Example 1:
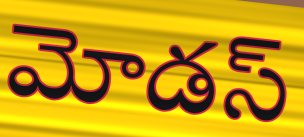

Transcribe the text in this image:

మోడస్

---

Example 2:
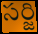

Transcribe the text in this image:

సర్జి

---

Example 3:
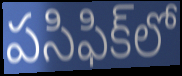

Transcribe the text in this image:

పసిఫిక్‌లో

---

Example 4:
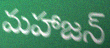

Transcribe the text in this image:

మహాజన్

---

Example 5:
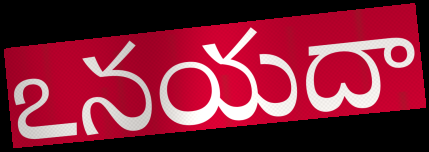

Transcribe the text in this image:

ఽనయదా